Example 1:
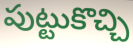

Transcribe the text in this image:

పుట్టుకొచ్చి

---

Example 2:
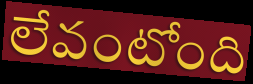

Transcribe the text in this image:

లేవంటోంది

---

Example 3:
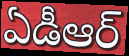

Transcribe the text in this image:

ఏడీఆర్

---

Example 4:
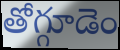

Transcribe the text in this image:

తోగ్గూడెం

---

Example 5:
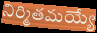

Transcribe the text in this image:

నిర్మితమయ్యే